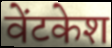
वेंटकेश